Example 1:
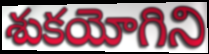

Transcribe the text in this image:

శుకయోగిని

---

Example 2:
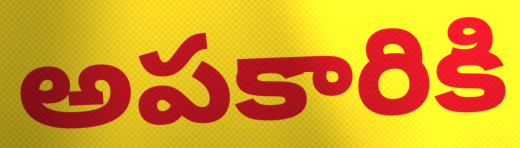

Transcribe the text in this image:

అపకారికి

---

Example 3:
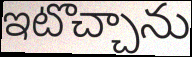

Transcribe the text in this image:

ఇటొచ్చాను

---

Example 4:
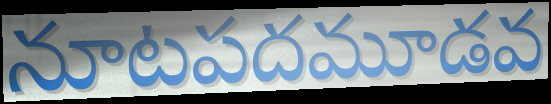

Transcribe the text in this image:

నూటపదమూడవ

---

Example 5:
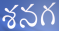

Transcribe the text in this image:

శనగ